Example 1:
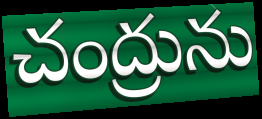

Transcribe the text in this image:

చంద్రును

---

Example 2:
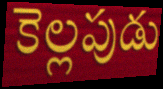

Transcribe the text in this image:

కెల్లపుడు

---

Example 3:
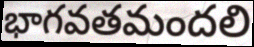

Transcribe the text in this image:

భాగవతమందలి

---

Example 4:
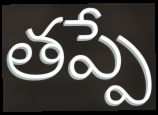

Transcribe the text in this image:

తప్పే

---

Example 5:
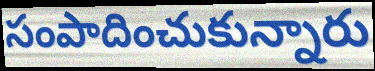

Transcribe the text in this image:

సంపాదించుకున్నారు